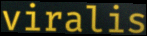
viralis